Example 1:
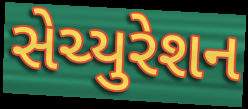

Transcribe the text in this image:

સેચ્યુરેશન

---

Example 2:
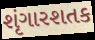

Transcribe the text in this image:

શૃંગારશતક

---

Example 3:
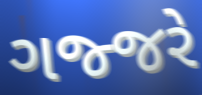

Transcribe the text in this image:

ગજ્જરે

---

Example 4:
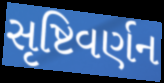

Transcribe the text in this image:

સૃષ્ટિવર્ણન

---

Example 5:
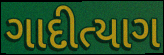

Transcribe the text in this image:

ગાદીત્યાગ